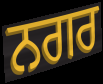
ਨਗਰ